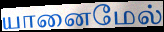
யானைமேல்